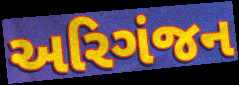
અરિગંજન